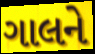
ગાલને